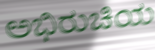
ಅಭಿರುಚಿಯ